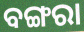
ବଙ୍ଗରା